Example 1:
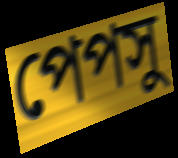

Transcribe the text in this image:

পেপসু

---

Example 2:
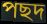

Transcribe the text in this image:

পছদ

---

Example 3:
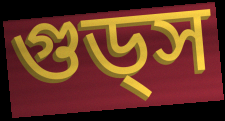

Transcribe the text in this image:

গুড্স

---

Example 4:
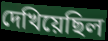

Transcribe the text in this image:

দেখিয়েছিল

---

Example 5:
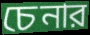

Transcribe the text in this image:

চেনার